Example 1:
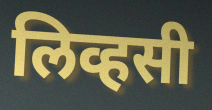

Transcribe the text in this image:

लिव्हसी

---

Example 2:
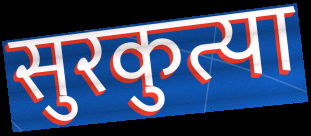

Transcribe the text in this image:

सुरकुत्या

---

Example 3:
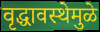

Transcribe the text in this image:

वृद्धावस्थेमुळे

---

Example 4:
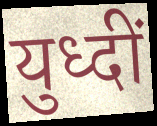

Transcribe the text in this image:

युध्दीं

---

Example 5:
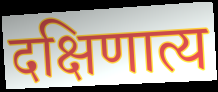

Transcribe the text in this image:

दक्षिणात्य